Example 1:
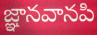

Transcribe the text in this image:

జ్ఞానవానపి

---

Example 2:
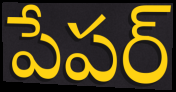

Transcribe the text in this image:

పేపర్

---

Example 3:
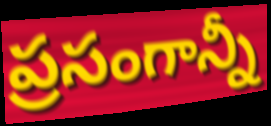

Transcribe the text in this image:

ప్రసంగాన్నీ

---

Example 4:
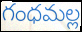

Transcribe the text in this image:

గంధమల్ల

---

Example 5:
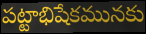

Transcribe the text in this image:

పట్టాభిషేకమునకు